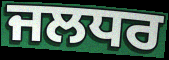
ਜਲਧਰ